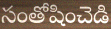
సంతోషించెడి